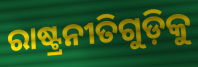
ରାଷ୍ଟ୍ରନୀତିଗୁଡ଼ିକୁ